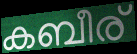
കബീര്